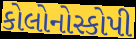
કોલોનોસ્કોપી